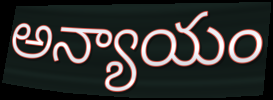
అన్యాయం